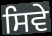
ਸਿਵੇ